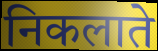
निकलाते